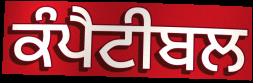
ਕੰਪੈਟੀਬਲ